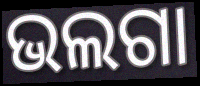
ଭଲଗା